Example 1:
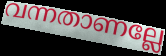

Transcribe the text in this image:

വന്നതാണല്ലേ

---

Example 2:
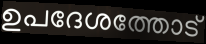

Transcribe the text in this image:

ഉപദേശത്തോട്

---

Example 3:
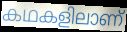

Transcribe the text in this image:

കഥകളിലാണ്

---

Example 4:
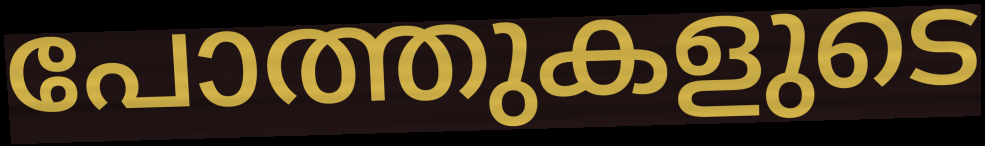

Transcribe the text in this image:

പോത്തുകളുടെ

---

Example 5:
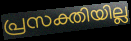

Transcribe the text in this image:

പ്രസക്തിയില്ല